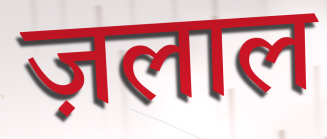
ज़लाल